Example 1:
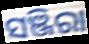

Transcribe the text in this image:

ସଞ୍ଜିରା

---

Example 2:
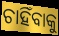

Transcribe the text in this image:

ଚାହିଁବାକୁ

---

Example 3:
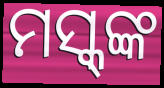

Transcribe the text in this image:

ମସ୍କ୍‌ଙ୍କ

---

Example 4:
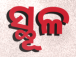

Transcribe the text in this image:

ସ୍ଥୂଳ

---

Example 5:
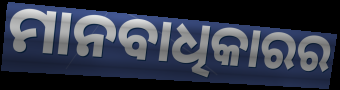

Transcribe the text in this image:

ମାନବାଧିକାରର